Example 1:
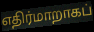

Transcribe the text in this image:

எதிர்மாறாகப்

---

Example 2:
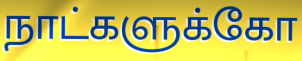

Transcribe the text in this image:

நாட்களுக்கோ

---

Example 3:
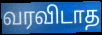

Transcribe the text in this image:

வரவிடாத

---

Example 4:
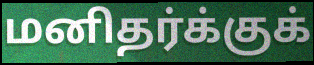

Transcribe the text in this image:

மனிதர்க்குக்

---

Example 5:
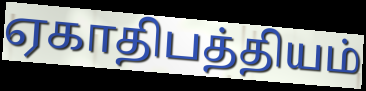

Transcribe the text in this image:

ஏகாதிபத்தியம்